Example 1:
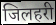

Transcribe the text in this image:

जिलहरी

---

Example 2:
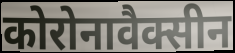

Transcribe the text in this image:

कोरोनावैक्सीन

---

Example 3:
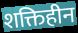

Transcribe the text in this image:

शक्तिहीन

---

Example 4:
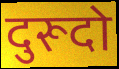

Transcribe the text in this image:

दुरूदो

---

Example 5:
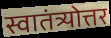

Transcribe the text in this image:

स्वातंत्र्योत्तर